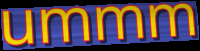
ummm